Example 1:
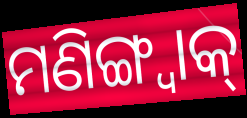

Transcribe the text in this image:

ମଣିଙ୍ଗ୍ୱାକ୍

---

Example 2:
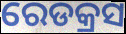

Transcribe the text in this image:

ରେଡକ୍ରସ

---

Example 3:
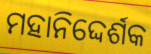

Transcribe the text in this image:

ମହାନିଦ୍ଦେର୍ଶକ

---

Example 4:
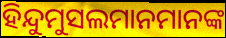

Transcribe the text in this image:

ହିନ୍ଦୁମୁସଲମାନମାନଙ୍କ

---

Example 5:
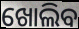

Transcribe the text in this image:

ଖୋଲିବ